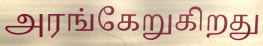
அரங்கேறுகிறது